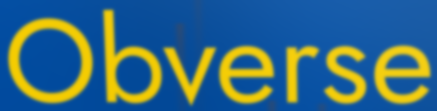
Obverse